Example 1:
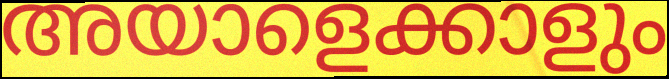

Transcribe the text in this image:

അയാളെക്കാളും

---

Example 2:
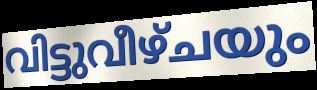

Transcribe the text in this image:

വിട്ടുവീഴ്ചയും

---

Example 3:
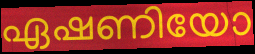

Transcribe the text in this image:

ഏഷണിയോ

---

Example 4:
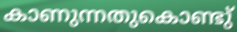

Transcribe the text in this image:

കാണുന്നതുകൊണ്ടു്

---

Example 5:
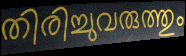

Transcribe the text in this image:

തിരിച്ചുവരുത്തും